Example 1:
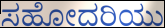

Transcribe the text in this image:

ಸಹೋದರಿಯು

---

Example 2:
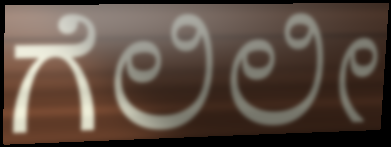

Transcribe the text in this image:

ಗೆಲಿಲೀ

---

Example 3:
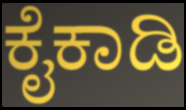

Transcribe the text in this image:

ಕೈಕಾಡಿ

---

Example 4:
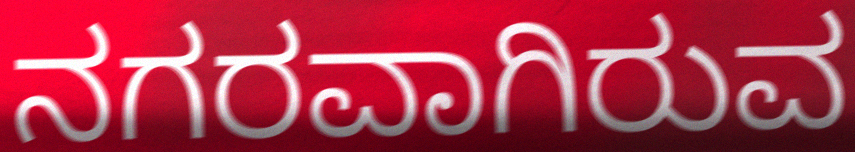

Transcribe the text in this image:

ನಗರವಾಗಿರುವ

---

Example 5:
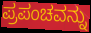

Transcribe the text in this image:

ಪ್ರಪಂಚವನ್ನು